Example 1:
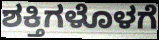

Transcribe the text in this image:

ಶಕ್ತಿಗಳೊಳಗೆ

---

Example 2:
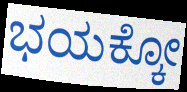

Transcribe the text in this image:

ಭಯಕ್ಕೋ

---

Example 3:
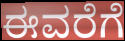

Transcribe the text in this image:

ಈವರೆಗೆ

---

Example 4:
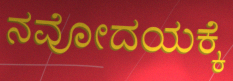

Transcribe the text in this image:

ನವೋದಯಕ್ಕೆ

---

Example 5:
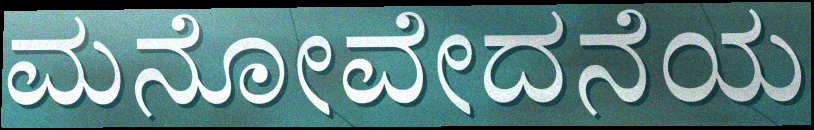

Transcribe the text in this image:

ಮನೋವೇದನೆಯ